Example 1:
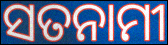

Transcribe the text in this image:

ସତନାମୀ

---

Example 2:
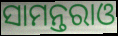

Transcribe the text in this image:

ସାମନ୍ତରାଓ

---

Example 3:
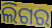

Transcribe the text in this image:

ଲିଗର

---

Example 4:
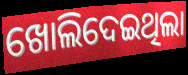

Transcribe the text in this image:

ଖୋଲିଦେଇଥିଲା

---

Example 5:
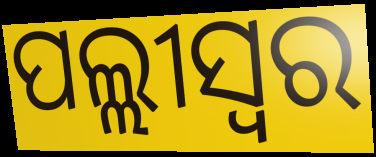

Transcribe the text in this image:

ପଲ୍ଲୀସ୍ଵର